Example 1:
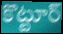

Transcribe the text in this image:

కొట్టూర్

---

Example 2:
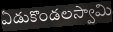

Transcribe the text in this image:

ఏడుకొండలస్వామి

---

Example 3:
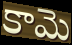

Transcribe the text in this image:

కామె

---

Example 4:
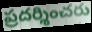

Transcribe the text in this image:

ప్రదర్శించరు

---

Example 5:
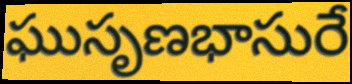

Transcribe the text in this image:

ఘుసృణభాసురే